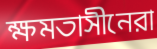
ক্ষমতাসীনেরা